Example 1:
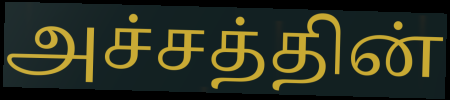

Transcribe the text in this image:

அச்சத்தின்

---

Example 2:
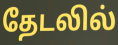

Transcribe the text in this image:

தேடலில்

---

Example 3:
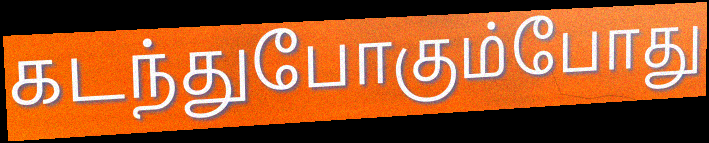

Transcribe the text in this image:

கடந்துபோகும்போது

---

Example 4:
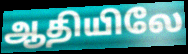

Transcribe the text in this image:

ஆதியிலே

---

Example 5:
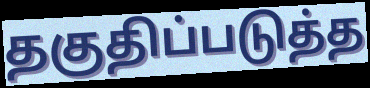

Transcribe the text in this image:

தகுதிப்படுத்த